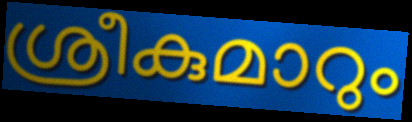
ശ്രീകുമാറും